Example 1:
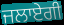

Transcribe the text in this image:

ਜਲਾਏਗੀ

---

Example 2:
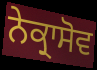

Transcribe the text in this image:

ਨੇਕ੍ਰਾਸੋਵ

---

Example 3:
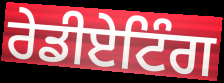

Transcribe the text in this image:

ਰੇਡੀਏਟਿੰਗ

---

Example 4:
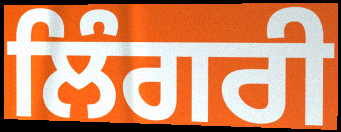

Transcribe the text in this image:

ਲਿੰਗਰੀ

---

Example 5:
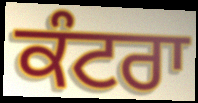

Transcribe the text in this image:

ਕੰਟਰਾ